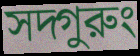
সদ্গুরুং